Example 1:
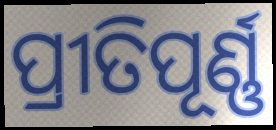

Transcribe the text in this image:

ପ୍ରୀତିପୂର୍ଣ୍ଣ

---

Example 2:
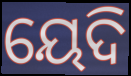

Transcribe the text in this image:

ୟେଦି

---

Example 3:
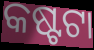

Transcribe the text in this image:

କଷ୍ଟଟା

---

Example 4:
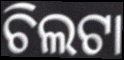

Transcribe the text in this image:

ଚିଲଟା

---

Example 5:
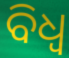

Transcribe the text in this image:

ବିଧ୍ଵ